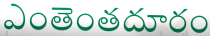
ఎంతెంతదూరం